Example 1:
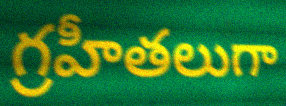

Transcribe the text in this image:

గ్రహీతలుగా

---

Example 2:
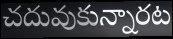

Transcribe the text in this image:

చదువుకున్నారట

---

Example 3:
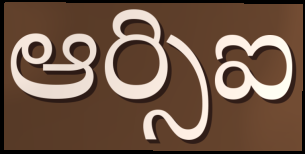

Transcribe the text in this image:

ఆర్సిఐ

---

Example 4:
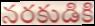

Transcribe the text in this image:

నరకుడికి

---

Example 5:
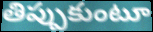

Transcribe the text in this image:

తిప్పుకుంటూ